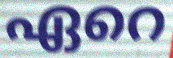
ഏറെ